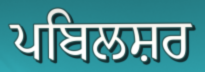
ਪਬਿਲਸ਼ਰ